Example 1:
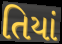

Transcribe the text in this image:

તિયાં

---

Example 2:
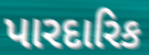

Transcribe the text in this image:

પારદારિક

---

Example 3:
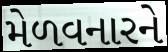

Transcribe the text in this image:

મેળવનારને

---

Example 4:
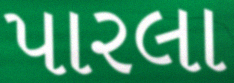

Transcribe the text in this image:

પારલા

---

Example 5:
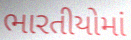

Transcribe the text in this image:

ભારતીયોમાં